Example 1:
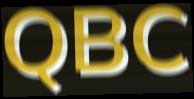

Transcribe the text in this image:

QBC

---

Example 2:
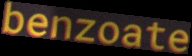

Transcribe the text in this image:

benzoate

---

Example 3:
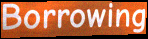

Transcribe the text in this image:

Borrowing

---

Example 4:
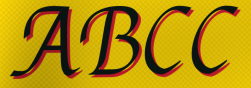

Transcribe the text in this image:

ABCC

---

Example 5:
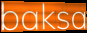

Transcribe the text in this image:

baksa